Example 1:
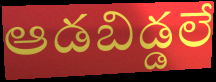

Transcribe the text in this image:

ఆడబిడ్డలే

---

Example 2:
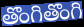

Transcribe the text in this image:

తొంగితొంగి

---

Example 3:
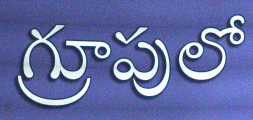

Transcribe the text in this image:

గ్రూపులో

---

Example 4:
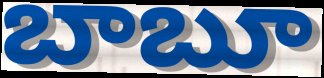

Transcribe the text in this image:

బాబూ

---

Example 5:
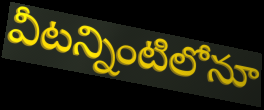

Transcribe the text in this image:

వీటన్నింటిలోనూ